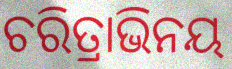
ଚରିତ୍ରାଭିନୟ